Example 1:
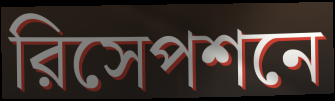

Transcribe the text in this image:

রিসেপশনে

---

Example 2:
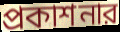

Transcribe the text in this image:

প্রকাশনার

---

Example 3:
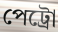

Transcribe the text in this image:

পেট্রো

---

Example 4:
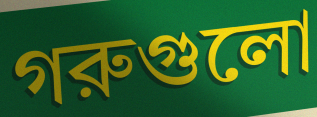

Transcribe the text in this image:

গরুগুলো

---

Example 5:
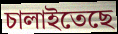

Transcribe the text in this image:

চালাইতেছে